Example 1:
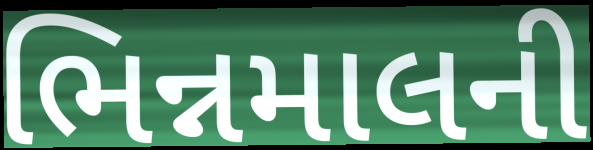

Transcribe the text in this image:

ભિન્નમાલની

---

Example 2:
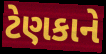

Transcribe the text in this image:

ટેણકાને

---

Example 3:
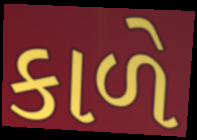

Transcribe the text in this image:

કાળે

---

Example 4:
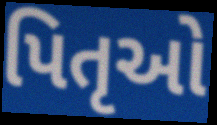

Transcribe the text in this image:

પિતૃઓ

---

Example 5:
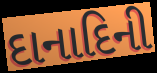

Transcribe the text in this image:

દાનાદિની